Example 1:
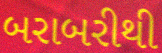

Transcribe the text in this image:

બરાબરીથી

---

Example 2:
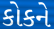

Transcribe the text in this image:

કોકને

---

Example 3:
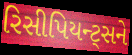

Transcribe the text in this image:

રિસીપિયન્ટ્સને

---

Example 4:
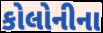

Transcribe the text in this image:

કોલોનીના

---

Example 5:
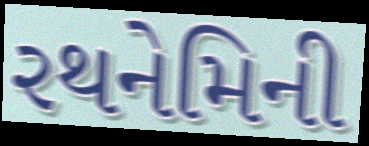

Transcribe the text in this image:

રથનેમિની